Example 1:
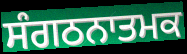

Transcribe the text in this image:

ਸੰਗਠਨਾਤਮਕ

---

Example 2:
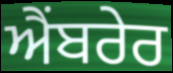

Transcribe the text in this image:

ਐਂਬਰੇਰ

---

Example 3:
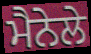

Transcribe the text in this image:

ਮੈਨੇਲੇ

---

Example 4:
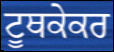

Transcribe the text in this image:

ਟੂਥਕੇਕਰ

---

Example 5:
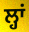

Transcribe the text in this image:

ਲ੍ਹਾਂ